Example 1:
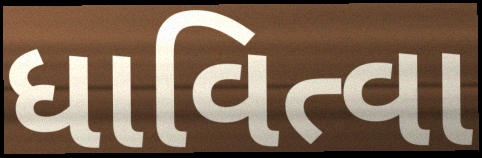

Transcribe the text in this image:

ધાવિત્વા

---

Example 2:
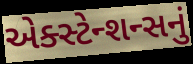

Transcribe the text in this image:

એક્સ્ટેન્શન્સનું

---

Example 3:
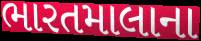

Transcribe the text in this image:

ભારતમાલાના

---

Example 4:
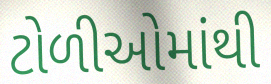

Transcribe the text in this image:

ટોળીઓમાંથી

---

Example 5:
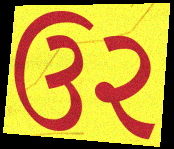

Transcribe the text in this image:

ઉર